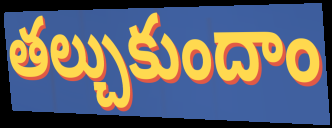
తల్చుకుందాం